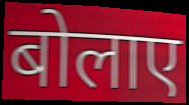
बोलाए